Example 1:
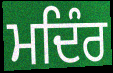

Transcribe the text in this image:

ਮਦਿੰਰ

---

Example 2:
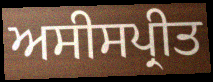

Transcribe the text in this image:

ਅਸੀਸਪ੍ਰੀਤ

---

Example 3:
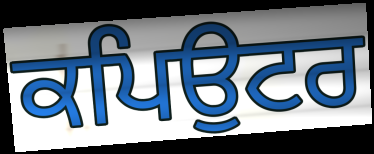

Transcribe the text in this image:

ਕਪਿਉਟਰ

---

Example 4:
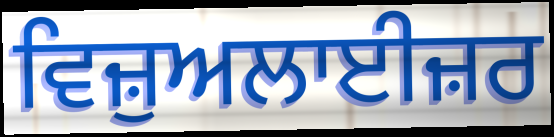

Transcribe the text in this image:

ਵਿਜ਼ੁਅਲਾਈਜ਼ਰ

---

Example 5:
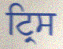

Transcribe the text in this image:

ਟ੍ਰਿਸ